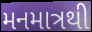
મનમાત્રથી